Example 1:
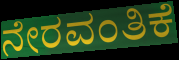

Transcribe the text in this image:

ನೇರವಂತಿಕೆ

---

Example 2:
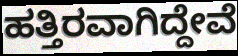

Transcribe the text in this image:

ಹತ್ತಿರವಾಗಿದ್ದೇವೆ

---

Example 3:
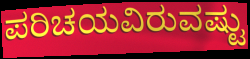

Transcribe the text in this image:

ಪರಿಚಯವಿರುವಷ್ಟು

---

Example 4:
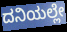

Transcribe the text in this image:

ದನಿಯಲ್ಲೇ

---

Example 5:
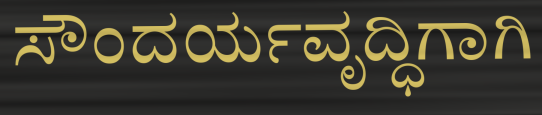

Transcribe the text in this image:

ಸೌಂದರ್ಯವೃದ್ಧಿಗಾಗಿ